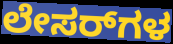
ಲೇಸರ್‌ಗಳ